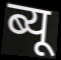
ब्यू